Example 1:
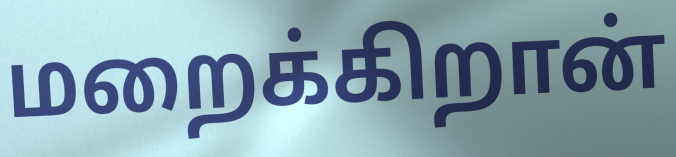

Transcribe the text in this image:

மறைக்கிறான்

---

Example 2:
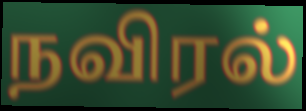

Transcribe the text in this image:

நவிரல்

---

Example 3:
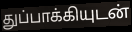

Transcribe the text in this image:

துப்பாக்கியுடன்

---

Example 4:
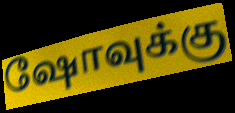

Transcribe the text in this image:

ஷோவுக்கு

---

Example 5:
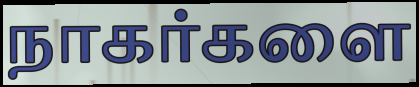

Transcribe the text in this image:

நாகர்களை